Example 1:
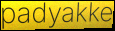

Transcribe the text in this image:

padyakke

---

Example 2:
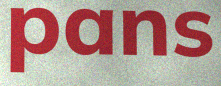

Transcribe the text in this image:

pans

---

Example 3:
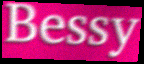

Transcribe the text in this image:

Bessy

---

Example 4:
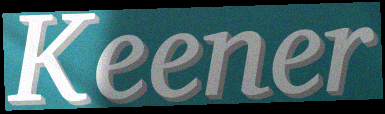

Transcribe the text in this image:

Keener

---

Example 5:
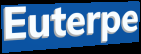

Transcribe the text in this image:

Euterpe